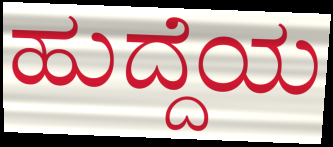
ಹುದ್ದೆಯ